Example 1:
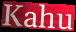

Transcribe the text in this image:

Kahu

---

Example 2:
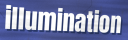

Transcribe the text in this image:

illumination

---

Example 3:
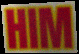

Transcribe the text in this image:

HIM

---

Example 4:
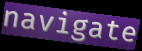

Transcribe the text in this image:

navigate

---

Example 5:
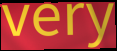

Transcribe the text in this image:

very